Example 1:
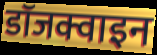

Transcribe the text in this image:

डॉजक्वाइन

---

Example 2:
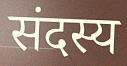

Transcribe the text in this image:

संदस्य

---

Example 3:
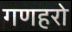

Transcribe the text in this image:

गणहरो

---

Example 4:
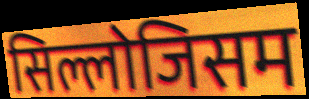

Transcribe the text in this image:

सिल्लोजिसम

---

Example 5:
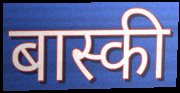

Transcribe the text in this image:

बास्की